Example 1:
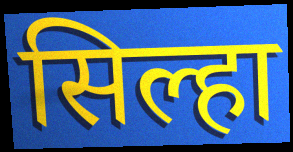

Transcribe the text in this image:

सिल्हा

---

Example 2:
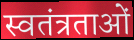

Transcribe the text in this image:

स्वतंत्रताओं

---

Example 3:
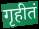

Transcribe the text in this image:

गृहीतं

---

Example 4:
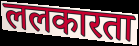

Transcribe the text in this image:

ललकारता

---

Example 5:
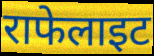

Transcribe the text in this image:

राफेलाइट